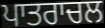
ਪਾਤਰਾਚਲ